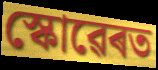
স্কোৱেৰত